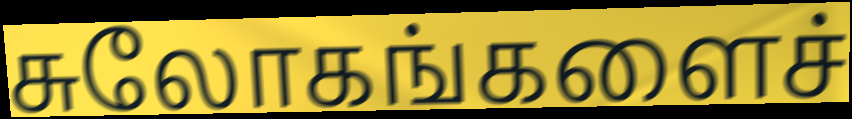
சுலோகங்களைச்